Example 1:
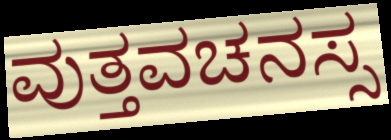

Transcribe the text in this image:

ವುತ್ತವಚನಸ್ಸ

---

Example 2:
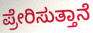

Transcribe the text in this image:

ಪ್ರೇರಿಸುತ್ತಾನೆ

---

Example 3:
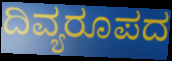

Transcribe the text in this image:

ದಿವ್ಯರೂಪದ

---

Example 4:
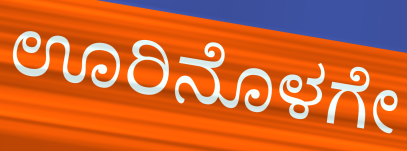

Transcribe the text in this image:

ಊರಿನೊಳಗೇ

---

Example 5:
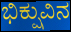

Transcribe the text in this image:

ಭಿಕ್ಷುವಿನ